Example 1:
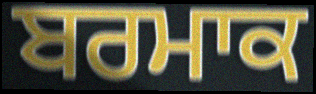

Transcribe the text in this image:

ਬਰਮਾਕ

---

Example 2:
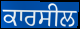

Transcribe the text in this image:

ਕਾਰਸੀਲ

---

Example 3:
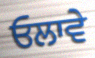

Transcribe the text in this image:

ਓਲਾਵੇ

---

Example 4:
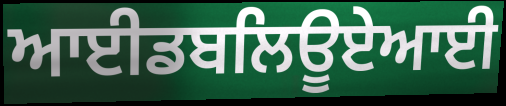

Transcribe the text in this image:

ਆਈਡਬਲਿਊਏਆਈ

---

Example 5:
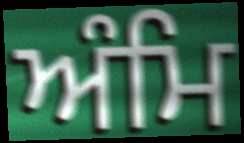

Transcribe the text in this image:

ਅੰਮਿ